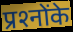
प्रश्नोंके